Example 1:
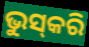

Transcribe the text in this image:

ଭୁସ୍‌କରି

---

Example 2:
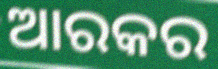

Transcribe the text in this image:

ଆରକର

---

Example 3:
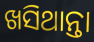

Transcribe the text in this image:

ଖସିଥାନ୍ତା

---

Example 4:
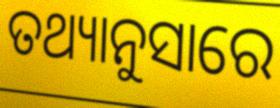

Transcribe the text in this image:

ତଥ୍ୟାନୁସାରେ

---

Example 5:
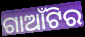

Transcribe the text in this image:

ଗାଆଁଟିର